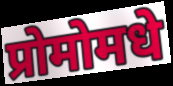
प्रोमोमधे